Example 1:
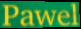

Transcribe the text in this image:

Pawel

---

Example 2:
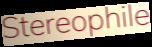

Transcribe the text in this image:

Stereophile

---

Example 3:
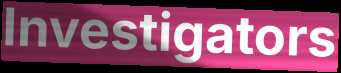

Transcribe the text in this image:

Investigators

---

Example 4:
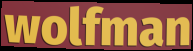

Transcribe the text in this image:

wolfman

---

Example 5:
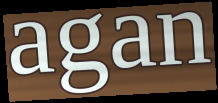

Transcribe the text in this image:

agan